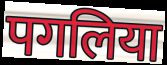
पगलिया